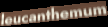
leucanthemum